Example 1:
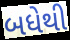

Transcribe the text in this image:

બધેથી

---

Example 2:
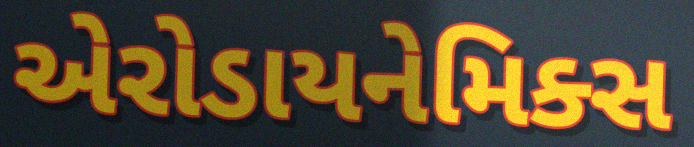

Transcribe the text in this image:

એરોડાયનેમિક્સ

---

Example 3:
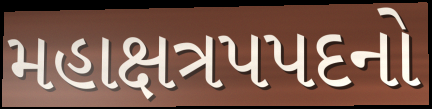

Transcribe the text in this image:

મહાક્ષત્રપપદનો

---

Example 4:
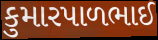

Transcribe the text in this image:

કુમારપાળભાઈ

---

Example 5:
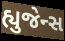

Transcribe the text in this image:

હ્યુજેન્સ